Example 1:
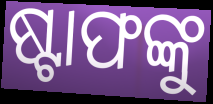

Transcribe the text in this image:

ଷ୍ଟାଫଙ୍କୁ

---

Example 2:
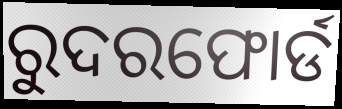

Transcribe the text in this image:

ରୁଦରଫୋର୍ଡ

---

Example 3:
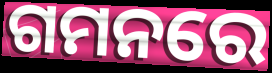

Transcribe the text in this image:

ଗମନରେ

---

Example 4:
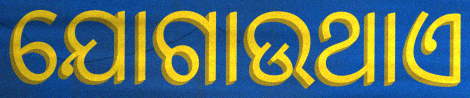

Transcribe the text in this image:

ଯୋଗାଉଥାଏ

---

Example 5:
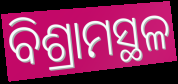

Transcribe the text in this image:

ବିଶ୍ରାମସ୍ଥଳ